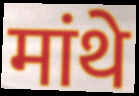
मांथे